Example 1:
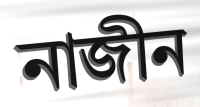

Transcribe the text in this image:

নাজীন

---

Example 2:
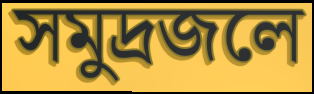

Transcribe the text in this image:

সমুদ্রজলে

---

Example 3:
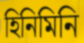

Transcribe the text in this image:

হিনিমিনি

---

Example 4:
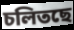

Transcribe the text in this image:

চলিতছে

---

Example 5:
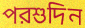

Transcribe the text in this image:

পরশুদিন